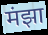
मंझा